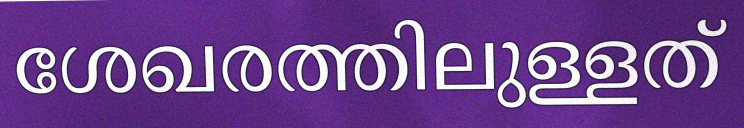
ശേഖരത്തിലുള്ളത്